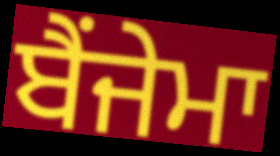
ਬੈਂਜੇਮਾ